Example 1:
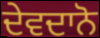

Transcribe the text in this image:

ਦੇਵਦਾਨੋ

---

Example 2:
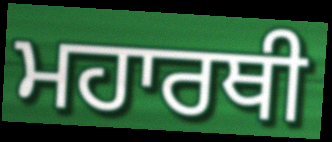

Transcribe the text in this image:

ਮਹਾਰਥੀ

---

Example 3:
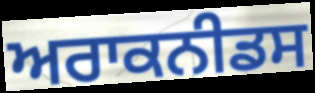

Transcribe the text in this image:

ਅਰਾਕਨੀਡਸ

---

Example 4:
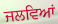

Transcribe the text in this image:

ਜਲਵਿਆਂ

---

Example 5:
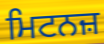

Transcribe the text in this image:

ਮਿਟਨਜ਼